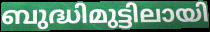
ബുദ്ധിമുട്ടിലായി